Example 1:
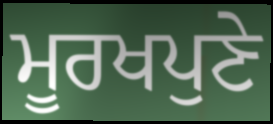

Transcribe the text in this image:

ਮੂਰਖਪੁਣੇ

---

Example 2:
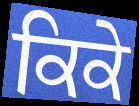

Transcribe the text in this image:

ਕਿਕੇ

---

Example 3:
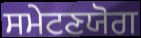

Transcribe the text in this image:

ਸਮੇਟਣਯੋਗ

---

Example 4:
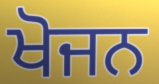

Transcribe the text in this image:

ਖੋਜਨ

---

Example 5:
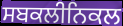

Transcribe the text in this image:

ਸਬਕਲੀਨਿਕਲ